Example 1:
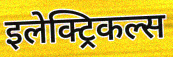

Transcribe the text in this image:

इलेक्ट्रिकल्स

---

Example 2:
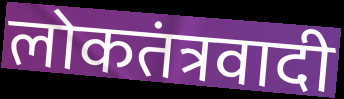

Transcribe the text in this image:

लोकतंत्रवादी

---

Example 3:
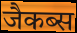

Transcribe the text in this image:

जैकब्स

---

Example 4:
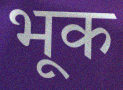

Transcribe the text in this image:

भूक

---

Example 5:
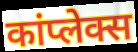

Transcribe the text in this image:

कांप्लेक्स